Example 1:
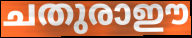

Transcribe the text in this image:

ചതുരാഈ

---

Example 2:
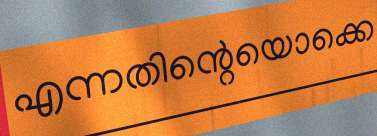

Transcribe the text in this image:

എന്നതിന്റെയൊക്കെ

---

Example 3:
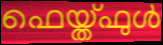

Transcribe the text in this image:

ഫെയ്ത്ഫുൾ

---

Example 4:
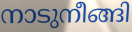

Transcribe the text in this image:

നാടുനീങ്ങി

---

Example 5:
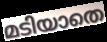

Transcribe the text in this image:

മടിയാതെ